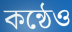
কন্ঠেও